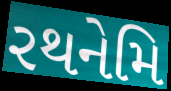
રથનેમિ